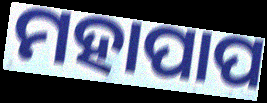
ମହାପାପ